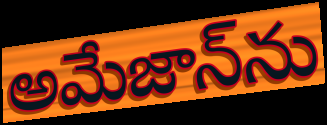
అమేజాన్‌ను